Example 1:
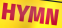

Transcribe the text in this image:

HYMN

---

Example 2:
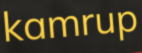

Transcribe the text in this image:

kamrup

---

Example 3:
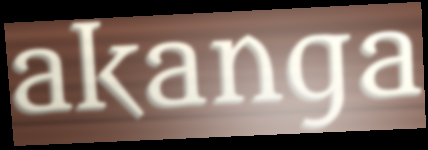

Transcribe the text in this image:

akanga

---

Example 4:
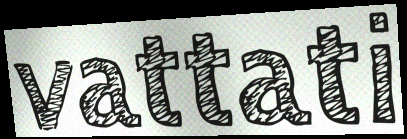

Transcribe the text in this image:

vattati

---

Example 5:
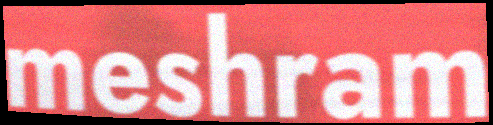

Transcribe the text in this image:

meshram